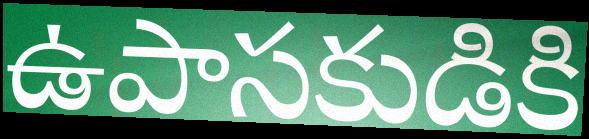
ఉపాసకుడికి